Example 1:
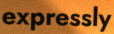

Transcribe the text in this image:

expressly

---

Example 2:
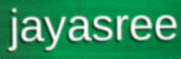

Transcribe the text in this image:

jayasree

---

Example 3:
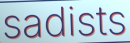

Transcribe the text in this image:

sadists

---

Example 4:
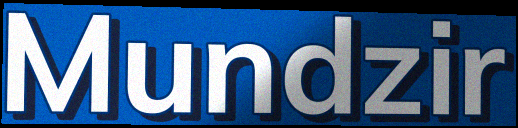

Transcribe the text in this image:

Mundzir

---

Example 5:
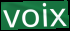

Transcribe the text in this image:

voix